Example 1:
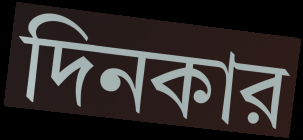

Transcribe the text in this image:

দিনকার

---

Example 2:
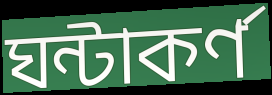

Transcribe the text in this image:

ঘন্টাকর্ণ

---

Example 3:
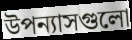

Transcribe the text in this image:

উপন্যাসগুলো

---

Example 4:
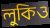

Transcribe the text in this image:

লুকিও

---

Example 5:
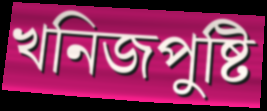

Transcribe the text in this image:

খনিজপুষ্টি